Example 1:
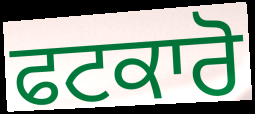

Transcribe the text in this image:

ਫਟਕਾਰੋ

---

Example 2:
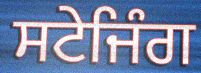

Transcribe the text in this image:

ਸਟੇਜਿੰਗ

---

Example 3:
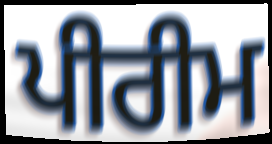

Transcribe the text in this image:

ਪੀਰੀਮ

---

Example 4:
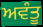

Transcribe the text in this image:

ਅਵੰਤੂ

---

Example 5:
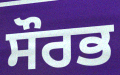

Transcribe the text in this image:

ਸੌਰਭ